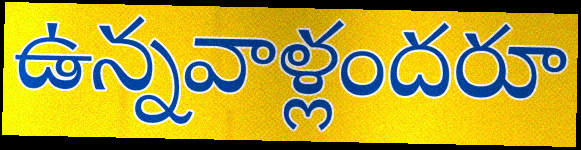
ఉన్నవాళ్లందరూ